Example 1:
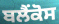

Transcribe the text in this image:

ਬਲੈਂਕੋਸ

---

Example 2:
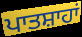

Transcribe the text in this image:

ਪਾਤਸ਼ਾਹਾਂ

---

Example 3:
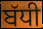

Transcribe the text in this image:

ਬੱਧੀ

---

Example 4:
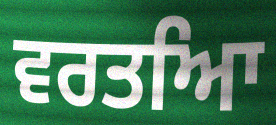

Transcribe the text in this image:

ਵਰਤਆਿ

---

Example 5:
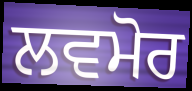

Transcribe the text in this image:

ਲਵਮੋਰ